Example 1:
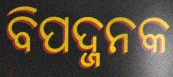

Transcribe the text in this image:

ବିପଦ୍ଜନକ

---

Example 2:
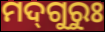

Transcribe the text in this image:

ମଦ୍‌ଗୁରୁଃ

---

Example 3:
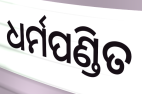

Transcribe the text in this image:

ଧର୍ମପଣ୍ଡିତ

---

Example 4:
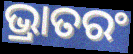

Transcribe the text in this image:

ଭ୍ରାତରଂ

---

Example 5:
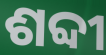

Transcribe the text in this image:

ଶବ୍ଦୀ